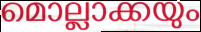
മൊല്ലാക്കയും